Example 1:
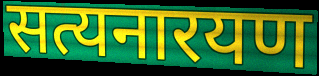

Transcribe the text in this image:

सत्यनारयण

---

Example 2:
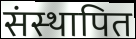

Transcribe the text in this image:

संस्थापित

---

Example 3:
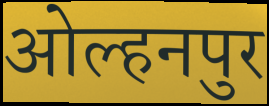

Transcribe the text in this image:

ओल्हनपुर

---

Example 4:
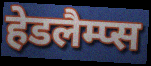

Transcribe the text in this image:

हेडलैम्प्स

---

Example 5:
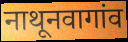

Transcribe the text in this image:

नाथूनवागांव